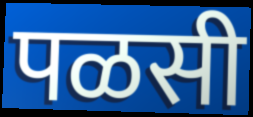
पळसी